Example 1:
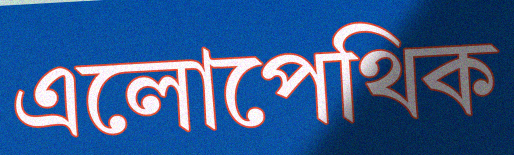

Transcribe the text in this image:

এলোপেথিক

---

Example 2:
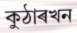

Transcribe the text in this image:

কুঠাৰখন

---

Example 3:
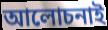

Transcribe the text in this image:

আলোচনাই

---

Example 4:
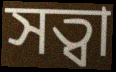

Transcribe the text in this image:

সত্বা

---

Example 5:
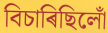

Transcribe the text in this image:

বিচাৰিছিলোঁ